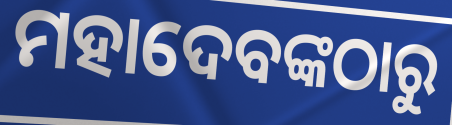
ମହାଦେବଙ୍କଠାରୁ